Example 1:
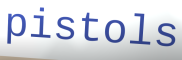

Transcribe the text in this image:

pistols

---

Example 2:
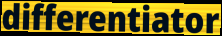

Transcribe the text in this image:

differentiator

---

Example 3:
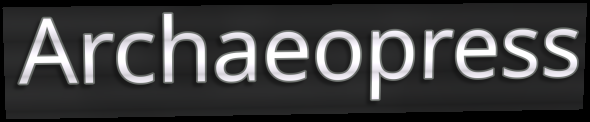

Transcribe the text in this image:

Archaeopress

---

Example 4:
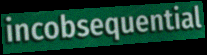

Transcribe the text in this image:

incobsequential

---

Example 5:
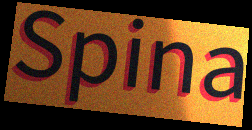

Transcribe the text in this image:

Spina